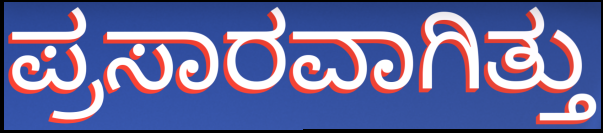
ಪ್ರಸಾರವಾಗಿತ್ತು